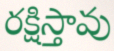
రక్షిస్తావు